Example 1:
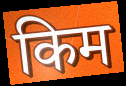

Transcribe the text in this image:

किम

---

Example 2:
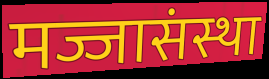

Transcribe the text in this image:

मज्जासंस्था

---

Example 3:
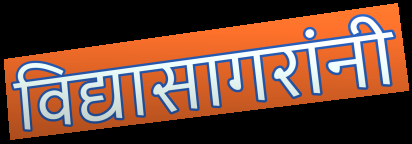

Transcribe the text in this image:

विद्यासागरांनी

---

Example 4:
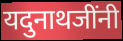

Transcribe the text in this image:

यदुनाथजींनी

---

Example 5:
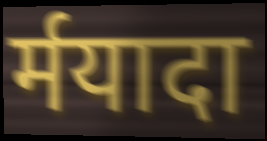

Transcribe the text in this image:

र्मयादा